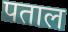
पताल